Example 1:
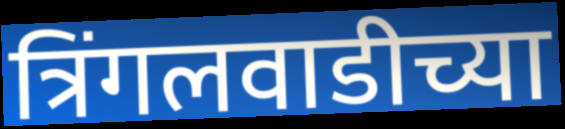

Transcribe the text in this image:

त्रिंगलवाडीच्या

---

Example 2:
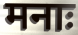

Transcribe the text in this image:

मनाः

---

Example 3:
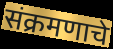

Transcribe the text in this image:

संक्रमणाचे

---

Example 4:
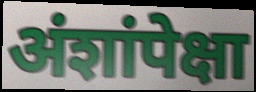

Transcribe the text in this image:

अंशांपेक्षा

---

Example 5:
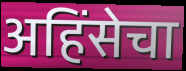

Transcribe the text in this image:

अहिंसेचा